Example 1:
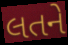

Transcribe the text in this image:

લતને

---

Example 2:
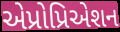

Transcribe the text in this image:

એપ્રોપ્રિએશન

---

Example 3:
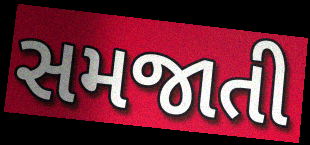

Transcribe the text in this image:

સમજાતી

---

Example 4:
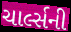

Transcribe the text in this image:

ચાર્લ્સની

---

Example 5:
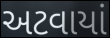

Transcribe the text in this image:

અટવાયાં